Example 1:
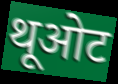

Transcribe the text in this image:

थूओट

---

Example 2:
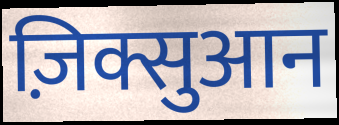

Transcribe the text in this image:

ज़िक्सुआन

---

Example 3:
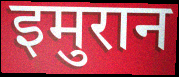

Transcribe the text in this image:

इमुरान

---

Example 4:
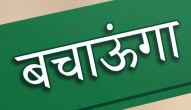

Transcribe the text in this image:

बचाऊंगा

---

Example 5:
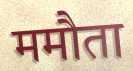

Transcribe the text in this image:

ममौता